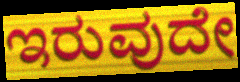
ಇರುವುದೇ